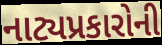
નાટ્યપ્રકારોની